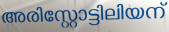
അരിസ്റ്റോട്ടിലിയന്